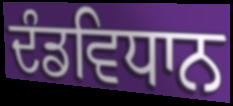
ਦੰਡਵਿਧਾਨ